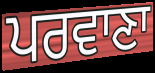
ਪਰਵਾਣਾ